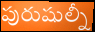
పురుషుల్నీ